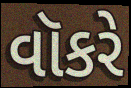
વૉકરે